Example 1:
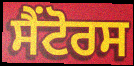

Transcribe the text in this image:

ਸੈਂਟੋਰਸ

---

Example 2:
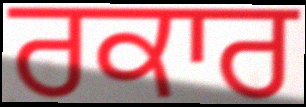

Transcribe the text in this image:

ਰਕਾਰ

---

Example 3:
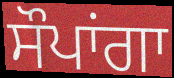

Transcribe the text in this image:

ਸੌਪਾਂਗਾ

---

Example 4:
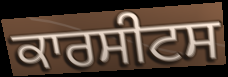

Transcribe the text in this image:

ਕਾਰਸੀਟਸ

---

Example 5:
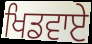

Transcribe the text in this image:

ਖਿਡਵਾਏ